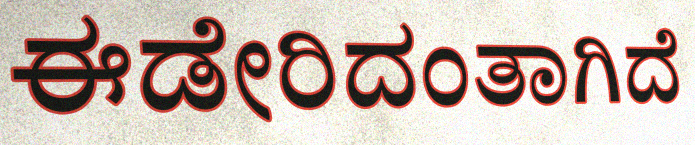
ಈಡೇರಿದಂತಾಗಿದೆ